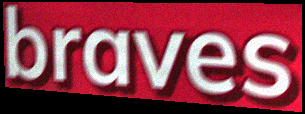
braves